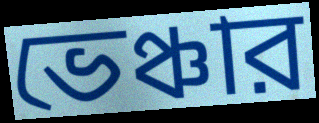
ভেঞ্চার